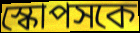
স্কোপসকে